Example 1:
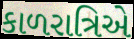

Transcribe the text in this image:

કાળરાત્રિએ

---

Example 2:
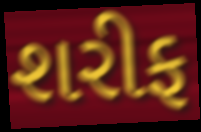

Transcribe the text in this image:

શરીફ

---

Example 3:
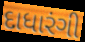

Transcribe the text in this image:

દાધારંગી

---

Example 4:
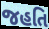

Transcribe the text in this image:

જહતિ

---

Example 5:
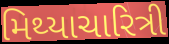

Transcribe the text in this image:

મિથ્યાચારિત્રી